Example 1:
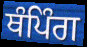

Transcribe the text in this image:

ਥੰਪਿੰਗ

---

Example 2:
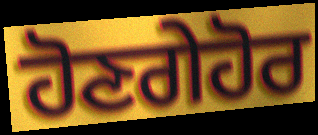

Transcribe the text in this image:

ਹੋਣਗੇਹੋਰ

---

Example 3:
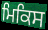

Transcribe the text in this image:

ਮਿਕਿਸ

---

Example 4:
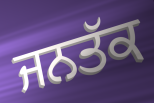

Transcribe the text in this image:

ਜਨਤੱਕ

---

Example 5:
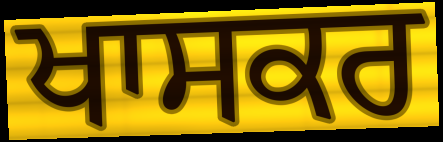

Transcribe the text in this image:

ਖਾਸਕਰ